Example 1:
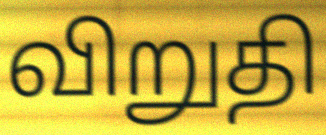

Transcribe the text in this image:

விறுதி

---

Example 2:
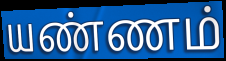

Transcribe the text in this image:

யண்ணம்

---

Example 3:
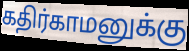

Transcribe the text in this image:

கதிர்காமனுக்கு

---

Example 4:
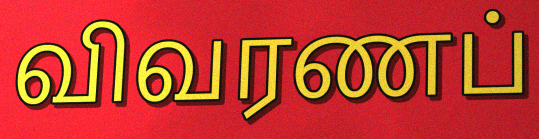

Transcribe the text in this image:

விவரணப்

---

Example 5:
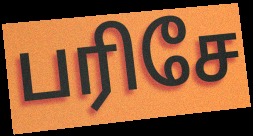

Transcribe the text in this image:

பரிசே